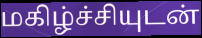
மகிழ்ச்சியுடன்